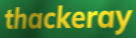
thackeray